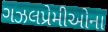
ગઝલપ્રેમીઓના